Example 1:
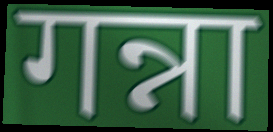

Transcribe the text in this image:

गन्ना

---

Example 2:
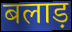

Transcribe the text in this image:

बलाड़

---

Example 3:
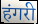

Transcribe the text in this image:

हंगरी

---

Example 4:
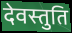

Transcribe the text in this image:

देवस्तुति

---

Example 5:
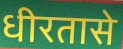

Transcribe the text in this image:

धीरतासे